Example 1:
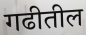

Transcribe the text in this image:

गढीतील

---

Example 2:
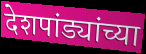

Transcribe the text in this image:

देशपांड्यांच्या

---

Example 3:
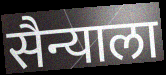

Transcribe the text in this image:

सैन्याला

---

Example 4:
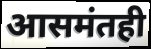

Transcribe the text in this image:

आसमंतही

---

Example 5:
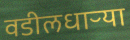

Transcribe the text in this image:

वडीलधाऱ्या